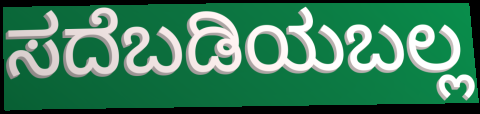
ಸದೆಬಡಿಯಬಲ್ಲ